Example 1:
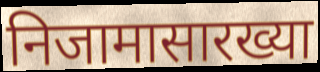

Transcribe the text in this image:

निजामासारख्या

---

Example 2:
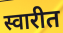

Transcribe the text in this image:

स्वारीत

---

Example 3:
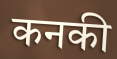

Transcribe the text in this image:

कनकी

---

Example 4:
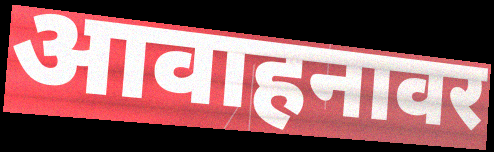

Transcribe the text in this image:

आवाहनावर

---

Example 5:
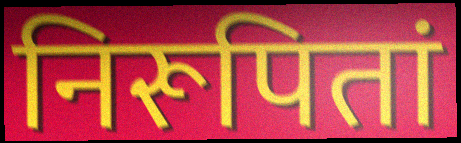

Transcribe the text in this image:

निरूपितां